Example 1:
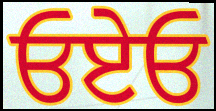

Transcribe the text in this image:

ਓਏਓ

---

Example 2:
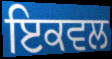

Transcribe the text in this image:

ਇਕਵਲ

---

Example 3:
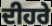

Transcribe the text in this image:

ਦੀਹਰੇ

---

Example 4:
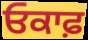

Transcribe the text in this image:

ਓਕਾਫ਼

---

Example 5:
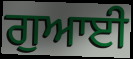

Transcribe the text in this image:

ਗੁਆਈ